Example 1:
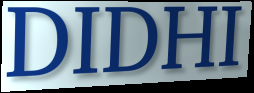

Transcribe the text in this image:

DIDHI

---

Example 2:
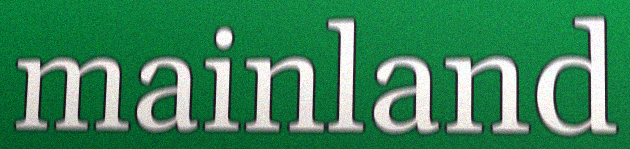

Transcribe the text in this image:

mainland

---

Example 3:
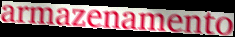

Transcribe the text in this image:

armazenamento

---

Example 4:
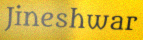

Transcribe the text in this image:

Jineshwar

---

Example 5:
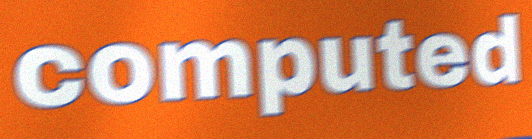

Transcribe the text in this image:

computed